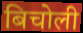
बिचोली